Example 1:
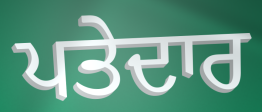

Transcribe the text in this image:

ਪਤੇਦਾਰ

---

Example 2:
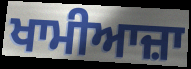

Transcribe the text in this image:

ਖਾਮੀਆਜ਼ਾ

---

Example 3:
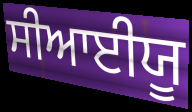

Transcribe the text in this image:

ਸੀਆਈਯੂ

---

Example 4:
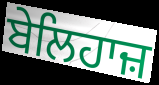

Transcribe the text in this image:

ਬੇਲਿਹਾਜ਼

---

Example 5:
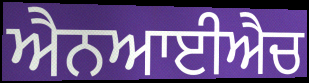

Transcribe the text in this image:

ਐਨਆਈਐਚ